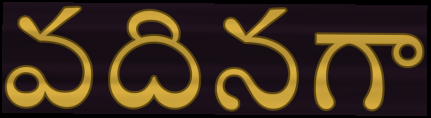
వదినగా